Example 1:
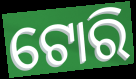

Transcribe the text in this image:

ଟୋରି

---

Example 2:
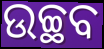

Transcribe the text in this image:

ଉଚ୍ଛବ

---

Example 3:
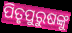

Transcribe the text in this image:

ପିତୃପୁରୁଷଙ୍କୁ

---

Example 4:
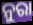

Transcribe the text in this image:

ନୁରା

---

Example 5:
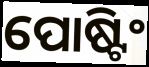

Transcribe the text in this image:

ପୋଷ୍ଟିଂ